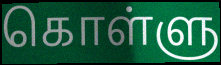
கொள்ளு